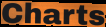
Charts